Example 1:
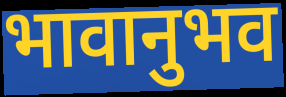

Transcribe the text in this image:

भावानुभव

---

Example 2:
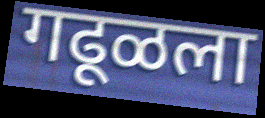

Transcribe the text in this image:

गढूळला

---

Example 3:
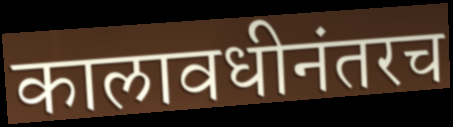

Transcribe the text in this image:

कालावधीनंतरच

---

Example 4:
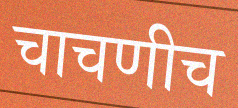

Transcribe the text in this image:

चाचणीच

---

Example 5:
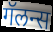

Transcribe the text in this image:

गॅलन्स